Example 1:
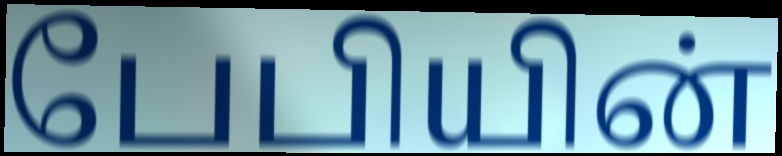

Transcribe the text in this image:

பேபியின்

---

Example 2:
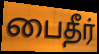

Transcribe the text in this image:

பைதீர்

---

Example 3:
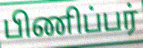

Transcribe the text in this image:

பிணிப்பர்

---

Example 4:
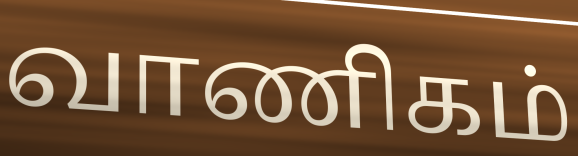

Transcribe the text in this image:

வாணிகம்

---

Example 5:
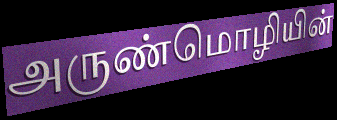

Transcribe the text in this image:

அருண்மொழியின்